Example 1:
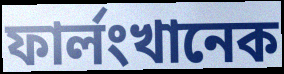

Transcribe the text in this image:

ফার্লংখানেক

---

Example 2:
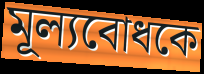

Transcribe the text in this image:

মূল্যবোধকে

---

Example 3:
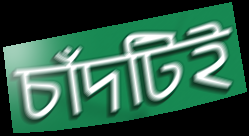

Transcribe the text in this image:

চাঁদটিই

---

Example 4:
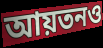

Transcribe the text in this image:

আয়তনও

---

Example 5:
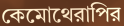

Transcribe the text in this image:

কেমোথেরাপির